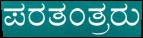
ಪರತಂತ್ರರು